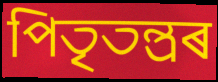
পিতৃতন্ত্ৰৰ